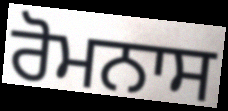
ਰੋਮਨਾਸ